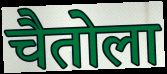
चैतोला